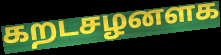
கறடசழனளக